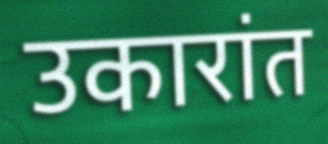
उकारांत